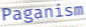
Paganism